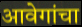
आवेगांचा